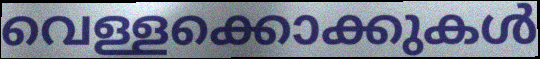
വെള്ളക്കൊക്കുകൾ